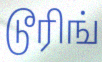
டூரிங்